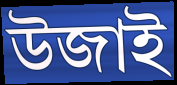
উজাই